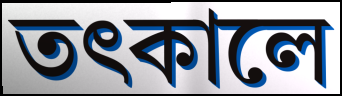
তৎকালে